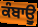
ਕੰਬਾਊੁ